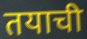
तयाची